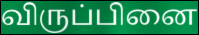
விருப்பினை